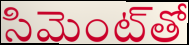
సిమెంట్‌తో